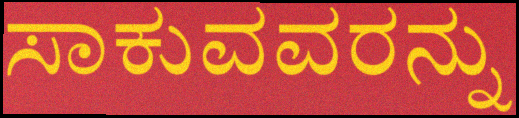
ಸಾಕುವವರನ್ನು